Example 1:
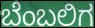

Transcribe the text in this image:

ಬೆಂಬಲಿಗ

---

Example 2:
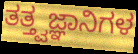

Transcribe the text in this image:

ತತ್ತ್ವಜ್ಞಾನಿಗಳ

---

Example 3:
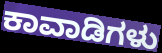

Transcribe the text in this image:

ಕಾವಾಡಿಗಳು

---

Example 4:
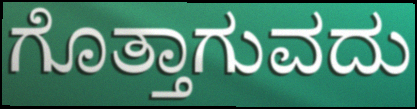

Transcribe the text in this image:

ಗೊತ್ತಾಗುವದು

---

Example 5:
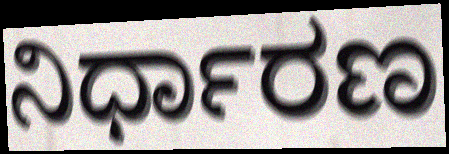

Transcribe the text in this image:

ನಿರ್ಧಾರಣ